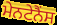
ਮੇਨਟੇਨੈਂਸ